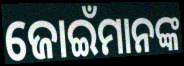
ଜୋଇଁମାନଙ୍କ